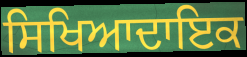
ਸਿਖਿਆਦਾਇਕ